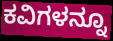
ಕವಿಗಳನ್ನೂ